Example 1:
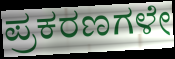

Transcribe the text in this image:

ಪ್ರಕರಣಗಳೇ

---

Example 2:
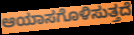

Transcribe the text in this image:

ಆಯಾಸಗೊಳಿಸುತ್ತದೆ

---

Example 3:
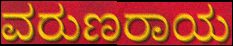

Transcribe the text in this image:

ವರುಣರಾಯ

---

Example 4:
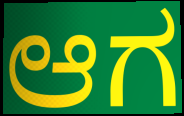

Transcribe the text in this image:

ಆಗ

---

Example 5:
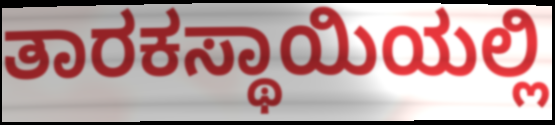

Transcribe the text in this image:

ತಾರಕಸ್ಥಾಯಿಯಲ್ಲಿ